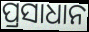
ପ୍ରସାଧାନ